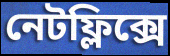
নেটফ্লিক্সে